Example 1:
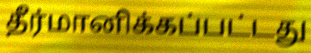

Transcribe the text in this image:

தீர்மானிக்கப்பட்டது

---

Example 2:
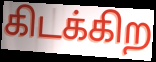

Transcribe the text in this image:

கிடக்கிற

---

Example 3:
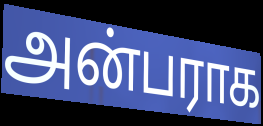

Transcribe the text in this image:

அன்பராக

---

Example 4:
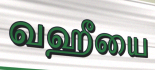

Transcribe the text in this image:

வஹீயை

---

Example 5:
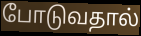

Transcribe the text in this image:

போடுவதால்